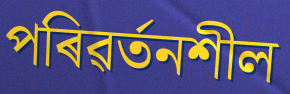
পৰিৱৰ্তনশীল